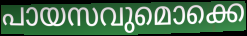
പായസവുമൊക്കെ